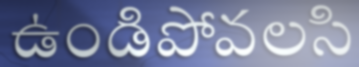
ఉండిపోవలసి